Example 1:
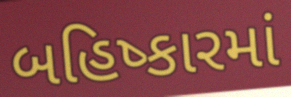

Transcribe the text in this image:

બહિષ્કારમાં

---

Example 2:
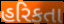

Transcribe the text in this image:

હરિકતા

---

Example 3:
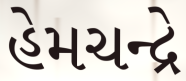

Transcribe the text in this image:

હેમચન્દ્રે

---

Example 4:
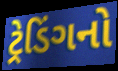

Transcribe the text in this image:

ટ્રેડિંગનો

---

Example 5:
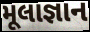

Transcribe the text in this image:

મૂલાજ્ઞાન